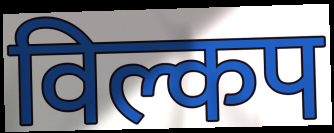
विल्कप